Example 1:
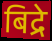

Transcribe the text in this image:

बिद्रे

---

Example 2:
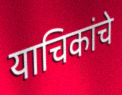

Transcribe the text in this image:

याचिकांचे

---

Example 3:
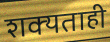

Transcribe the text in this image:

शक्‍यताही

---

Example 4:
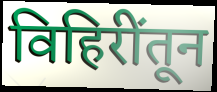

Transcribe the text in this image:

विहिरींतून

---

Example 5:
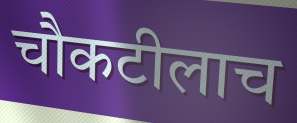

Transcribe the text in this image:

चौकटीलाच